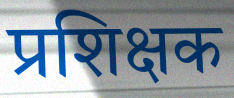
प्रशिक्षक